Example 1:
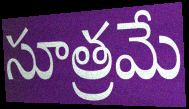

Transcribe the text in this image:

సూత్రమే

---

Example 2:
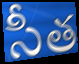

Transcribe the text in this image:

సీత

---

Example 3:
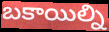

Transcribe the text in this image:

బకాయిల్ని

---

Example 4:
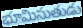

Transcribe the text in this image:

భూమిసుతుడు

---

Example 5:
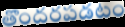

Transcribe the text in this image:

తొందరపడటం